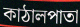
কাঠালপাতা